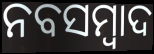
ନବସମ୍ବାଦ